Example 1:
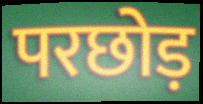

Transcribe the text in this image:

परछोड़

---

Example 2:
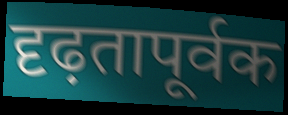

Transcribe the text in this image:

दृढ़तापूर्वक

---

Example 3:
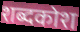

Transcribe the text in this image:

शब्दकोश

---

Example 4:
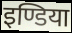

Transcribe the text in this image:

इण्डिया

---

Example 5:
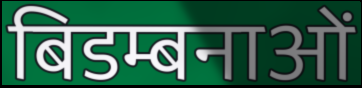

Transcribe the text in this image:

बिडम्बनाओं